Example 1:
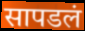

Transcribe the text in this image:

सापडलं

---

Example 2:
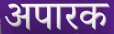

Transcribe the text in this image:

अपारक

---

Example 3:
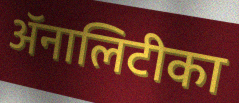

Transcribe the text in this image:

ॲनालिटीका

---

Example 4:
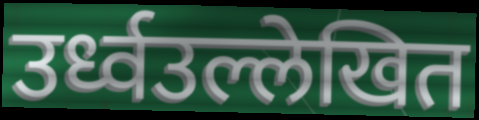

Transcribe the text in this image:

उर्ध्वउल्लेखित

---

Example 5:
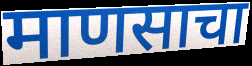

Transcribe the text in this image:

माणसाचा